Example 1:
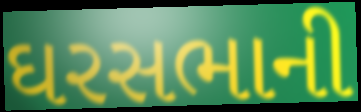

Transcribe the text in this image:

ઘરસભાની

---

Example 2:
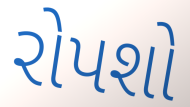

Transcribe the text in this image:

રોપશો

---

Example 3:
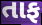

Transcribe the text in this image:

તાફ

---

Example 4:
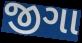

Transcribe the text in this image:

જીગા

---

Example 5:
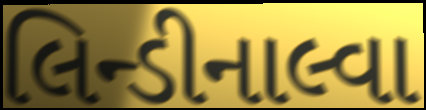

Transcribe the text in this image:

લિન્ડીનાલ્વા